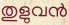
തുളുവൻ